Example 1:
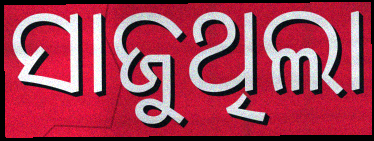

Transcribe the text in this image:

ସାଜୁଥିଲା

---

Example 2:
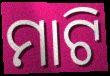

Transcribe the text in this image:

ମାଟି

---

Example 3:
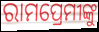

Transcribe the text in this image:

ରାମପ୍ରେମୀଙ୍କୁ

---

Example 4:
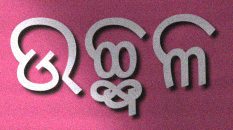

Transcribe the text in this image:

ଉଚ୍ଛ୍ଵଳ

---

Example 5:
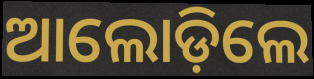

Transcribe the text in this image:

ଆଲୋଡ଼ିଲେ